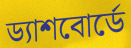
ড্যাশবোর্ডে